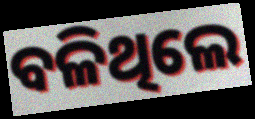
ବଳିଥିଲେ